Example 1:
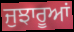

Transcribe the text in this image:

ਜੁਝਾਰੂਆਂ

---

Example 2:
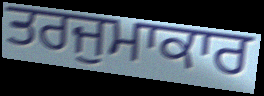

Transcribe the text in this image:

ਤਰਜੁਮਾਕਾਰ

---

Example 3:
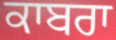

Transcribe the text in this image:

ਕਾਬਰਾ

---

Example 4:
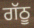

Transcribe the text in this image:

ਗੱਠੂ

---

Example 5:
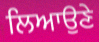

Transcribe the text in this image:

ਲਿਆਉਣੇ